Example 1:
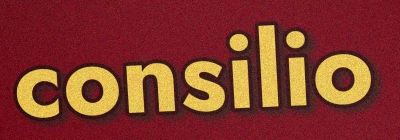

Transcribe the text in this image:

consilio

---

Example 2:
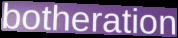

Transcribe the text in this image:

botheration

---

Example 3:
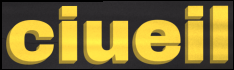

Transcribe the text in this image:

ciueil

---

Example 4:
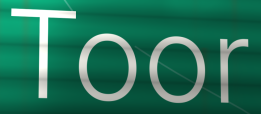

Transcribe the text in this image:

Toor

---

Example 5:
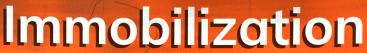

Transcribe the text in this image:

Immobilization